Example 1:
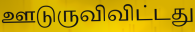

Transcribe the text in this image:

ஊடுருவிவிட்டது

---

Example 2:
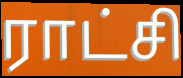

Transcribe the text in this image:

ராட்சி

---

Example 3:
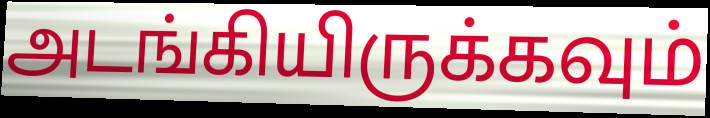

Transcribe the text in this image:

அடங்கியிருக்கவும்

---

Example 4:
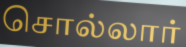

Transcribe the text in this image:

சொல்லார்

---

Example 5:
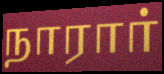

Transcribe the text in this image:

நாரார்